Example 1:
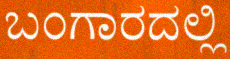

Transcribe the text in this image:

ಬಂಗಾರದಲ್ಲಿ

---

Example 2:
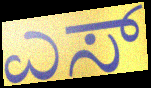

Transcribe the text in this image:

ಎಸ್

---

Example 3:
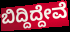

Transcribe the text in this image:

ಬಿದ್ದಿದ್ದೇವೆ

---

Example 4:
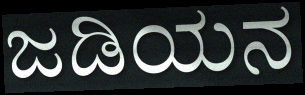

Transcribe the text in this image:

ಜಡಿಯನ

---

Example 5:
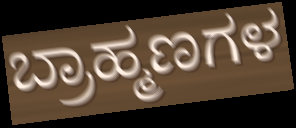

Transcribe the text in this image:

ಬ್ರಾಹ್ಮಣಗಳ